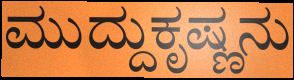
ಮುದ್ದುಕೃಷ್ಣನು